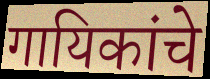
गायिकांचे